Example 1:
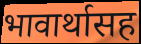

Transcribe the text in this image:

भावार्थासह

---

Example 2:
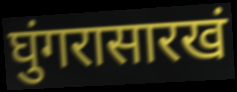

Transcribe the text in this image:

घुंगरासारखं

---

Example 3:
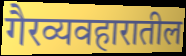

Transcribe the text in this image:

गैरव्यवहारातील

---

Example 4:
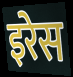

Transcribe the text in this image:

इरेस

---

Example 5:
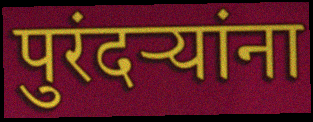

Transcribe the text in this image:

पुरंदऱ्यांना